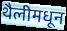
थैलीमधून